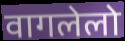
वागलेलो